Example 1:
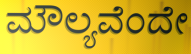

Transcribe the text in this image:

ಮೌಲ್ಯವೆಂದೇ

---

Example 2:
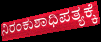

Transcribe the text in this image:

ನಿರಂಕುಶಾಧಿಪತ್ಯಕ್ಕೆ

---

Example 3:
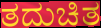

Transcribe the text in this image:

ತದುಚಿತ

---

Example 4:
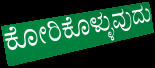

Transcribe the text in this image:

ಕೋರಿಕೊಳ್ಳುವುದು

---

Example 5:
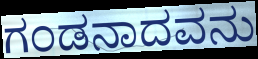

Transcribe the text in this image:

ಗಂಡನಾದವನು